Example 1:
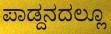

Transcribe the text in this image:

ಪಾಡ್ದನದಲ್ಲೂ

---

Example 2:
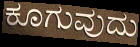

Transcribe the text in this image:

ಕೂಗುವುದು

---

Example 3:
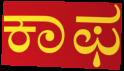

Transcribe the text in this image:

ಕಾಫ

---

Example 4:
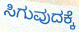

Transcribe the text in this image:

ಸಿಗುವುದಕ್ಕೆ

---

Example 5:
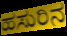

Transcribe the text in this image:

ಹಸುರಿನ